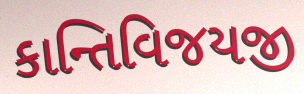
કાન્તિવિજયજી